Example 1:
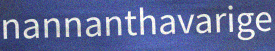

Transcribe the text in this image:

nannanthavarige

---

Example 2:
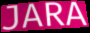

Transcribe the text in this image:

JARA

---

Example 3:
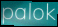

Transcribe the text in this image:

palok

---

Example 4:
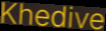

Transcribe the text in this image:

Khedive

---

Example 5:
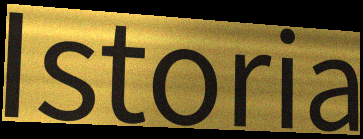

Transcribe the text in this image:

Istoria